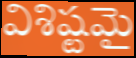
విశిష్టమై